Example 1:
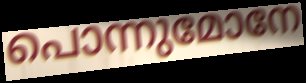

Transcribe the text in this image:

പൊന്നുമോനേ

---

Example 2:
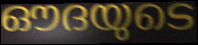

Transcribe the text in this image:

ഔദയുടെ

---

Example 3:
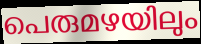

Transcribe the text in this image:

പെരുമഴയിലും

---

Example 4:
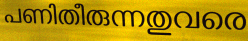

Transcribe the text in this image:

പണിതീരുന്നതുവരെ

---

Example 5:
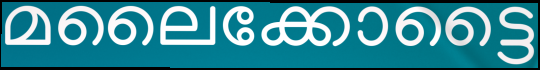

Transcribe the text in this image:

മലൈക്കോട്ടൈ